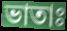
ভাতাঃ